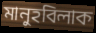
মানুহবিলাক